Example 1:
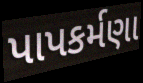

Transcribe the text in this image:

પાપકર્મણા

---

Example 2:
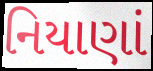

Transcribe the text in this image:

નિયાણાં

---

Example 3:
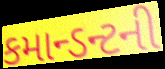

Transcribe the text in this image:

કમાન્ડન્ટની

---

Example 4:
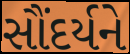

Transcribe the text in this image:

સૌંદર્યને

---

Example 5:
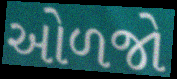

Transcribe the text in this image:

ઓળજો